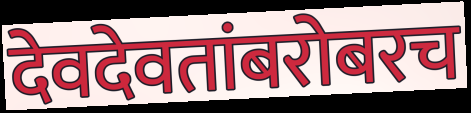
देवदेवतांबरोबरच